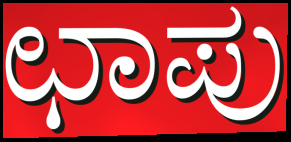
ಛಾಪು